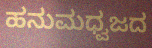
ಹನುಮಧ್ವಜದ